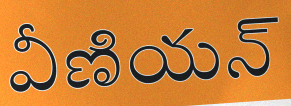
వీణియన్